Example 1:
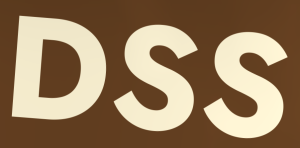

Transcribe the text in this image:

DSS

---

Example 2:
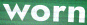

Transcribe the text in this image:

worn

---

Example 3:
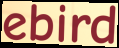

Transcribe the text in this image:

ebird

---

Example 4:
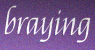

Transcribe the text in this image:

braying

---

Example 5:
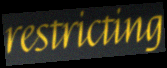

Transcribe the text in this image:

restricting